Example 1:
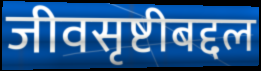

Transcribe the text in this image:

जीवसृष्टीबद्दल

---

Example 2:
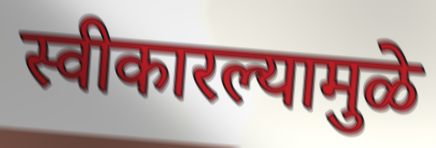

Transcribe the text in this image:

स्वीकारल्यामुळे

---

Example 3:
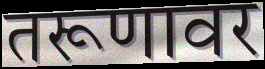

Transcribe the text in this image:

तरूणावर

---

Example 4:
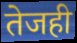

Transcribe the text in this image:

तेजही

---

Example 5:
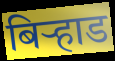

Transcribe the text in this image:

बिऱ्हाड